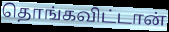
தொங்கவிட்டான்